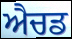
ਐਚਡ